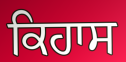
ਕਿਹਾਸ